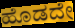
ಹೊಡದೇ